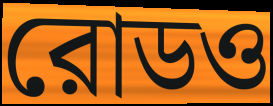
রোডও